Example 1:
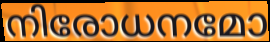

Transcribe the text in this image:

നിരോധനമോ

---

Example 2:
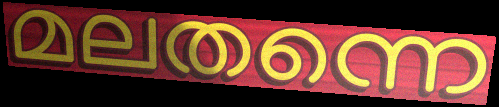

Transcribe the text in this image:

മലതന്നെ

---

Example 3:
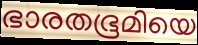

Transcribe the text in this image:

ഭാരതഭൂമിയെ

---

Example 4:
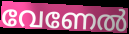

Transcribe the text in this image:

വേണേൽ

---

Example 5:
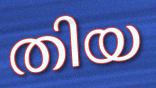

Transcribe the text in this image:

തിയ